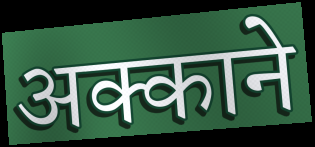
अक्काने